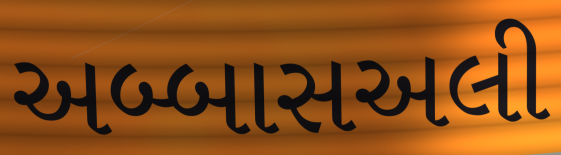
અબ્બાસઅલી